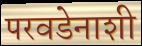
परवडेनाशी